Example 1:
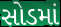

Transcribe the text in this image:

સોડમાં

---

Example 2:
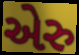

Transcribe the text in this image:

એરુ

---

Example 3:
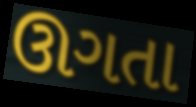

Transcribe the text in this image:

ઊગતા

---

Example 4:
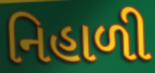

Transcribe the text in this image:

નિહાળી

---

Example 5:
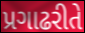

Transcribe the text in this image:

પ્રગાઢરીતે